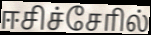
ஈசிச்சேரில்